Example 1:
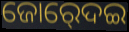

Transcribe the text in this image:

ଜୋର୍‍ଦେଇ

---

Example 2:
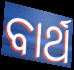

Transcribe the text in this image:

ବାର୍ଥ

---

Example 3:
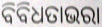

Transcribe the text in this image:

ବିବିଧତାଭରା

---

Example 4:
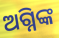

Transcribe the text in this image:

ଅଗ୍ନିଙ୍କ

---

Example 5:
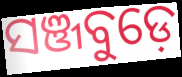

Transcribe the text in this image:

ସଞ୍ଜବୁଡ଼େ